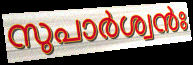
സുപാർശ്വൻഃ